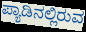
ಪ್ಯಾಡಿನಲ್ಲಿರುವ